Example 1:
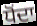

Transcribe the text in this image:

ਧੋਂਦਾ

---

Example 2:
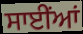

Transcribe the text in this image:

ਸਾਈਂਆਂ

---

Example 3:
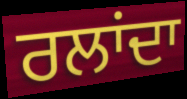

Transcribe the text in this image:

ਰਲਾਂਦਾ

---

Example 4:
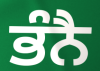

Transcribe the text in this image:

ਭੰਨੈ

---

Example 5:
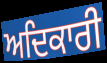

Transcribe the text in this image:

ਅਦਿਕਾਰੀ